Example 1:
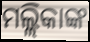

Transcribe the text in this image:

ମଲ୍ଲିକାଙ୍କ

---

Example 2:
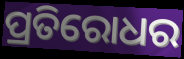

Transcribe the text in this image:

ପ୍ରତିରୋଧର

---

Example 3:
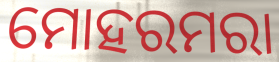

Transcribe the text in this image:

ମୋହରମରା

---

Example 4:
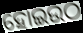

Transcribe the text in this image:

ହୋଇଉଠ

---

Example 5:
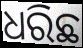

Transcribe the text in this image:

ଧରିଛ